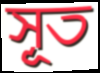
সূত